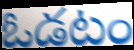
ఓడటం